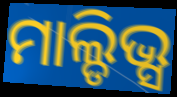
ମାଲ୍ଡିଭ୍ସ